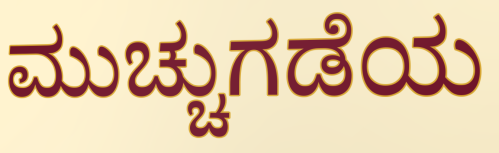
ಮುಚ್ಚುಗಡೆಯ